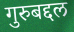
गुरुबद्दल